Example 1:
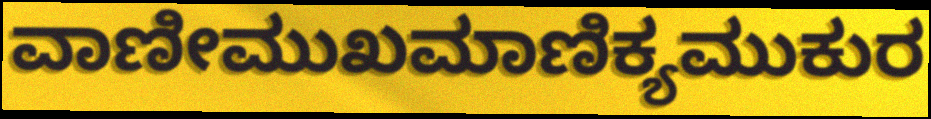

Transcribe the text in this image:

ವಾಣೀಮುಖಮಾಣಿಕ್ಯಮುಕುರ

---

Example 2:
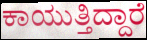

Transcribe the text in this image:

ಕಾಯುತ್ತಿದ್ದಾರೆ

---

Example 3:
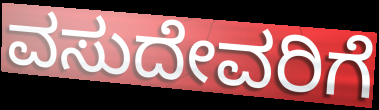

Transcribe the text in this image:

ವಸುದೇವರಿಗೆ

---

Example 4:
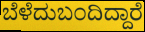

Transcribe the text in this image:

ಬೆಳೆದುಬಂದಿದ್ದಾರೆ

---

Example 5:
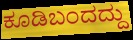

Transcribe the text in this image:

ಕೂಡಿಬಂದದ್ದು